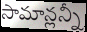
సామాన్లన్నీ